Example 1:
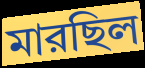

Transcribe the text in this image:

মারছিল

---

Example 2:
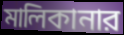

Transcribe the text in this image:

মালিকানার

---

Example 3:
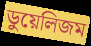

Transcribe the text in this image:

ডুয়েলিজম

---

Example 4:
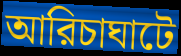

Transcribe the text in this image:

আরিচাঘাটে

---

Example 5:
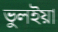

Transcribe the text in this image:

ভুলইয়া